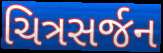
ચિત્રસર્જન